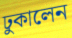
ঢুকালেন